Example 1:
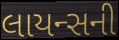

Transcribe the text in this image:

લાયન્સની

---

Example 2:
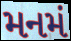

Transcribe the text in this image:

મનમં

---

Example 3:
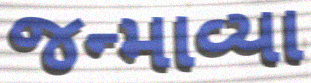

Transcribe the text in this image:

જન્માવ્યા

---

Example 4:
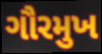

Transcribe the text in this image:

ગૌરમુખ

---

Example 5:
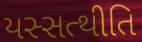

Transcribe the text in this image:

યસ્સત્થીતિ